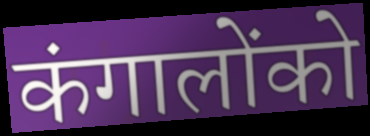
कंगालोंको